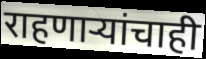
राहणाऱ्यांचाही